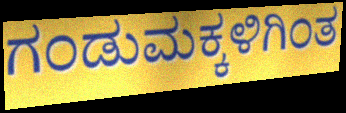
ಗಂಡುಮಕ್ಕಳಿಗಿಂತ